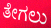
ತೇಗಲು